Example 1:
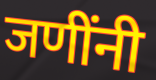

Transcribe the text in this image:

जणींनी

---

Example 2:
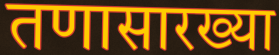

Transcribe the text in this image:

तणासारख्या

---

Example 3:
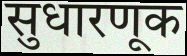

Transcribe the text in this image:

सुधारणूक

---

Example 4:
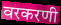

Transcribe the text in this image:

वरकरणी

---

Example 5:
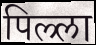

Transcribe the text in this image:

पिल्ला